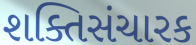
શક્તિસંચારક